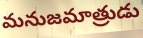
మనుజమాత్రుడు